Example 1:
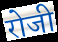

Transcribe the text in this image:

रोजी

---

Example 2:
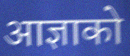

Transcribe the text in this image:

आज्ञाको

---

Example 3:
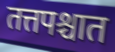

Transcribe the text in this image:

तत्तपश्चात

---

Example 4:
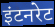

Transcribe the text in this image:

इंटनरेट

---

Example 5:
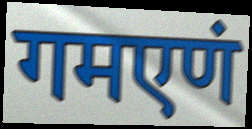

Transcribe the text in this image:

गमएणं